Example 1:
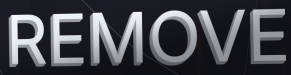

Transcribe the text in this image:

REMOVE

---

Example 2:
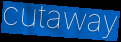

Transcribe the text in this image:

cutaway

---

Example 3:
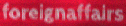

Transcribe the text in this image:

foreignaffairs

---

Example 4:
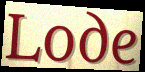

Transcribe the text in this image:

Lode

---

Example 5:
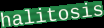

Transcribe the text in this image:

halitosis